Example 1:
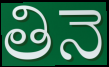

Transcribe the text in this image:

తినె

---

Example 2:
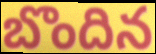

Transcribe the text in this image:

బొందిన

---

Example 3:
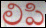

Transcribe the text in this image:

లిపి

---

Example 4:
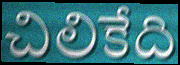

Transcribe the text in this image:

చిలికేది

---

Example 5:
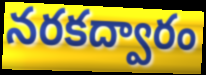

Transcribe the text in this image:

నరకద్వారం